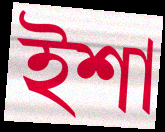
ইশা